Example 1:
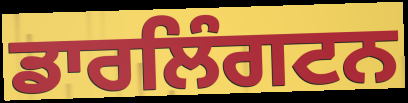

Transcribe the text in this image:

ਡਾਰਲਿੰਗਟਨ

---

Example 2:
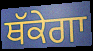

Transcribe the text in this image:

ਥੱਕੇਗਾ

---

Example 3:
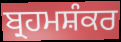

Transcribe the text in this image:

ਬ੍ਰਹਮਸ਼ੰਕਰ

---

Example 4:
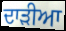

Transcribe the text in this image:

ਦਾੜੀਆ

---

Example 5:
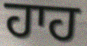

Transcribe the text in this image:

ਹਾਹ